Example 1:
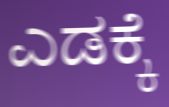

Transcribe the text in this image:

ಎಡಕ್ಕೆ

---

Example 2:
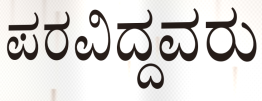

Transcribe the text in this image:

ಪರವಿದ್ದವರು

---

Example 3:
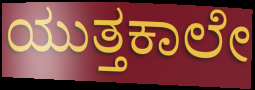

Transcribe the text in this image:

ಯುತ್ತಕಾಲೇ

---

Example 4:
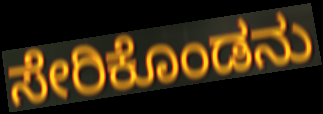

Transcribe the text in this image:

ಸೇರಿಕೊಂಡನು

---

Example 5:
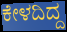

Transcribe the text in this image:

ಕೇಳದಿದ್ದ